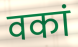
वकां